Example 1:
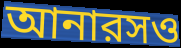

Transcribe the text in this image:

আনারসও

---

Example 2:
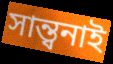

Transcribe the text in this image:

সান্ত্বনাই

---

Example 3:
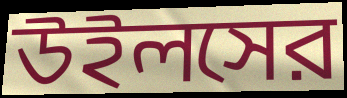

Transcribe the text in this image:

উইলসের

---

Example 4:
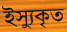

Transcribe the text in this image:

ইস্যুকৃত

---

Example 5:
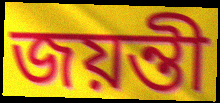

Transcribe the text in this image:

জয়ন্তী